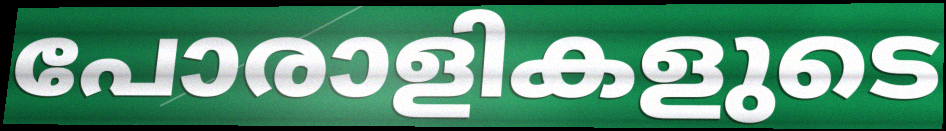
പോരാളികളുടെ